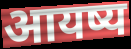
आयष्य